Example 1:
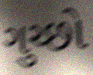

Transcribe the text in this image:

ગુચ્છો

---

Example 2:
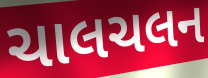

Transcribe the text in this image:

ચાલચલન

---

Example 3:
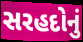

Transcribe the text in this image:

સરહદોનું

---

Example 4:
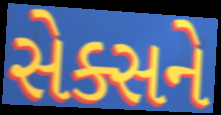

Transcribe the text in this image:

સેક્સને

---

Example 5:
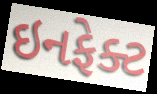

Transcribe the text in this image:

ઇનફેક્ટ